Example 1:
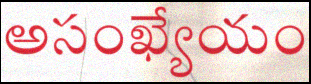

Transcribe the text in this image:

అసంఖ్యేయం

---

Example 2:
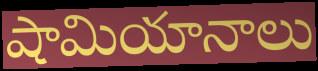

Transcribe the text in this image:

షామియానాలు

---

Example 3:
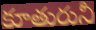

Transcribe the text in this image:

కూతురునీ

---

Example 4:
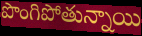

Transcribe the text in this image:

పొంగిపోతున్నాయి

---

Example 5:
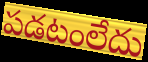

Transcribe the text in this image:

పడటంలేదు